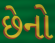
છેનો